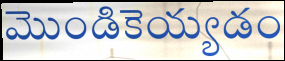
మొండికెయ్యడం